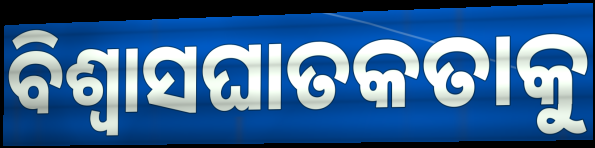
ବିଶ୍ୱାସଘାତକତାକୁ